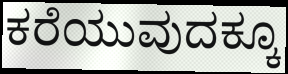
ಕರೆಯುವುದಕ್ಕೂ